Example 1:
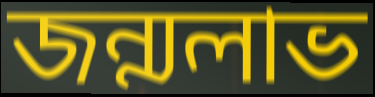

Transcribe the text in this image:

জন্মলাভ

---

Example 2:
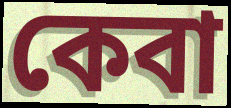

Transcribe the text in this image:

কেবা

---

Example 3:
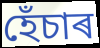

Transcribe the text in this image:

হেঁচাৰ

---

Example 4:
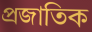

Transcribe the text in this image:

প্ৰজাতিক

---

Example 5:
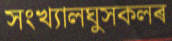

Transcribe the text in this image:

সংখ্যালঘুসকলৰ